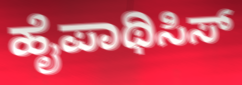
ಹೈಪಾಥಿಸಿಸ್